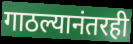
गाठल्यानंतरही